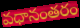
వధానంతరం